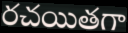
రచయితగా